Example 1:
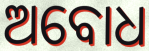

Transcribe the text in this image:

ଅବୋଧ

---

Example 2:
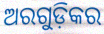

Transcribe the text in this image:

ଅରଗୁଡ଼ିକର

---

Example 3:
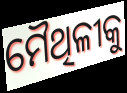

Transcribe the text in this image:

ମୈଥିଳୀକୁ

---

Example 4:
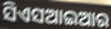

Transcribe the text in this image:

ସିଏସଆଇଆର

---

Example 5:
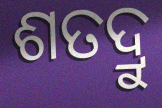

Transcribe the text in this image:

ଶତଦ୍ରୁ